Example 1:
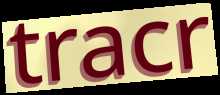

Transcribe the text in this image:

tracr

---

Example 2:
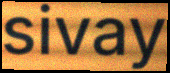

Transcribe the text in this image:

sivay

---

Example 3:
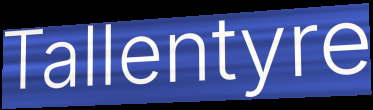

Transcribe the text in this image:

Tallentyre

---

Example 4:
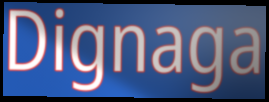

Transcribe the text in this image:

Dignaga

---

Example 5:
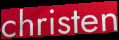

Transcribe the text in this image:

christen